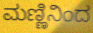
ಮಣ್ಣಿನಿಂದ